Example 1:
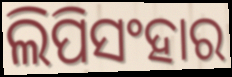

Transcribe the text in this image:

ଲିପିସଂହାର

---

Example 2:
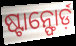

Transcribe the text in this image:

ଷ୍ଟାନ୍ଫୋର୍ଡ଼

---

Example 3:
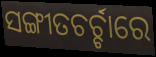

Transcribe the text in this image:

ସଙ୍ଗୀତଚର୍ଚ୍ଚାରେ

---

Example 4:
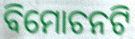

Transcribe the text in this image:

ବିମୋଚନଟି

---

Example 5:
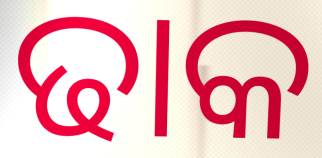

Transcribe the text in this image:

ଢାକ